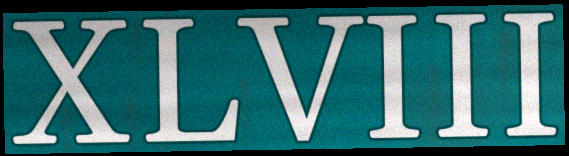
XLVIII